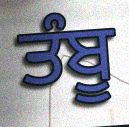
ਤੰਬੂ